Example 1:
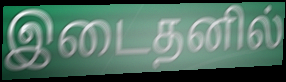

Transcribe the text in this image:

இடைதனில்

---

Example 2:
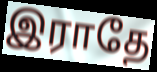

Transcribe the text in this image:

இராதே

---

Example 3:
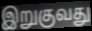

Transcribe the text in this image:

இறுகுவது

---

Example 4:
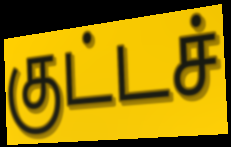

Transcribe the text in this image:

குட்டச்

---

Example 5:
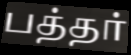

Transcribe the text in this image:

பத்தர்